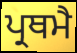
ਪ੍ਰਥਮੈ